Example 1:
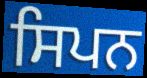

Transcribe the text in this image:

ਸਿਪਨ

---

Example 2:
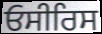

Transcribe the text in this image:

ਓਸੀਰਿਸ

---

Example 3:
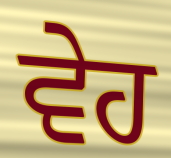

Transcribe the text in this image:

ਵੇਹ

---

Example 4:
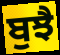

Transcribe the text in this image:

ਬੁਝੈ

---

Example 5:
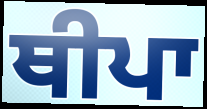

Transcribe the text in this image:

ਥੀਪਾ